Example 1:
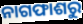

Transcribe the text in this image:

ନାଗଫାଶରୁ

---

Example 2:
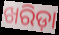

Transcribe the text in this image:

ଖରିଡ଼ା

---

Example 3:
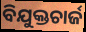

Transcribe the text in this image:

ବିଯୁକ୍ତଚାର୍ଜ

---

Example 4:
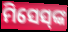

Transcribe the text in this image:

ମିସେସ୍‍ଙ୍କ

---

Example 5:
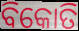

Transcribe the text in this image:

ବିକୋତି